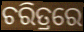
ଚରିତ୍ରରେ